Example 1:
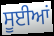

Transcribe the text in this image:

ਸੂਈਆਂ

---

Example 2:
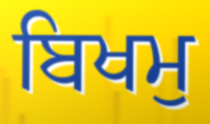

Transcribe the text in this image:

ਬਿਖਮੁ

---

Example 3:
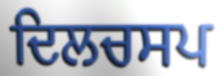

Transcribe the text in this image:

ਦਿਲਚਸਪ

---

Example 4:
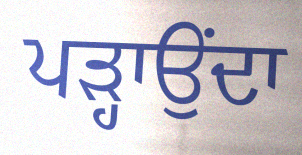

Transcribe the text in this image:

ਪੜ੍ਹਾਉਂਦਾ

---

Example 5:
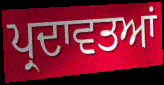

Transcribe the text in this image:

ਪ੍ਰਦਾਵਤਆਂ